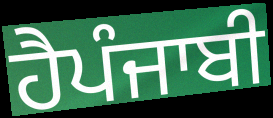
ਹੈਪੰਜਾਬੀ